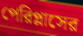
পেরিপ্লাসের